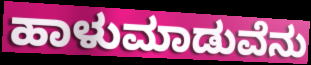
ಹಾಳುಮಾಡುವೆನು